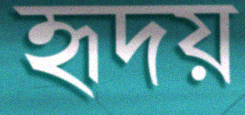
হৃদয়